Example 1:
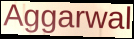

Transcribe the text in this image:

Aggarwal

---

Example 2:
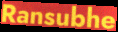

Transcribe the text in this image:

Ransubhe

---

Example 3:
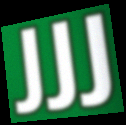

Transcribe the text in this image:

JJJ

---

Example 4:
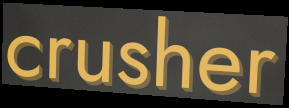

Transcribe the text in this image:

crusher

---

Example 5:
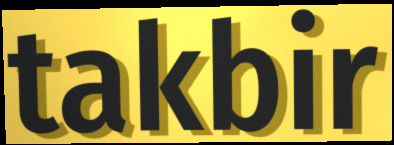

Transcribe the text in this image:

takbir